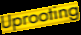
Uprooting